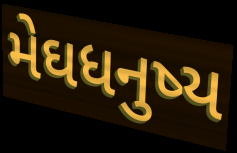
મેઘધનુષ્ય